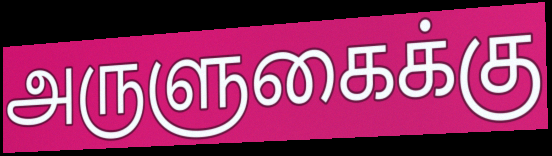
அருளுகைக்கு